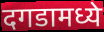
दगडामध्ये